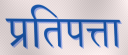
प्रतिपत्ता